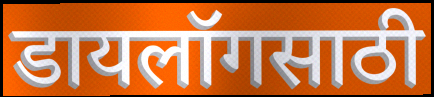
डायलॉगसाठी